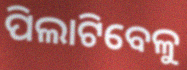
ପିଲାଟିବେଳୁ